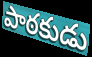
పాఠకుడు